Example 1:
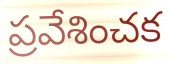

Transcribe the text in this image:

ప్రవేశించక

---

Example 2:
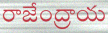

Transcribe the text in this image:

రాజేంద్రాయ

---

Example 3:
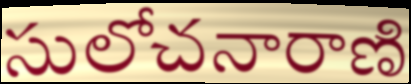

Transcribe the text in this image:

సులోచనారాణి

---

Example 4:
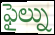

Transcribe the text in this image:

ఫైల్ను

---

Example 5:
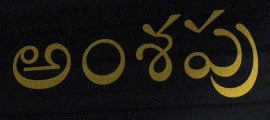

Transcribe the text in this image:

అంశపు